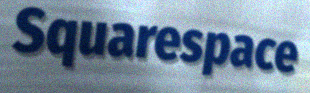
Squarespace